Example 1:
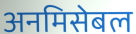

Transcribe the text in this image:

अनमिसेबल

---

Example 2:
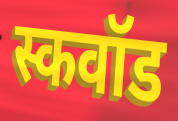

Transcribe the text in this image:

स्कवॉड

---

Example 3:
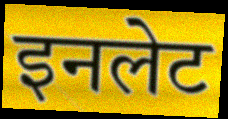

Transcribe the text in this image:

इनलेट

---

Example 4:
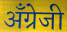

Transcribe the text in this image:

अँग्रेजी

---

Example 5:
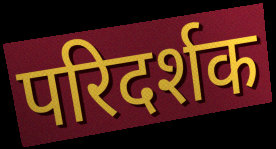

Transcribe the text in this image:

परिदर्शक